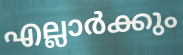
എല്ലാർക്കും